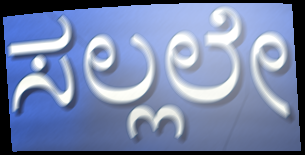
ಸಲ್ಲಲೇ